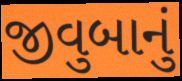
જીવુબાનું